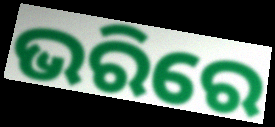
ଭରିରେ